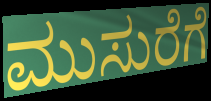
ಮುಸುರೆಗೆ